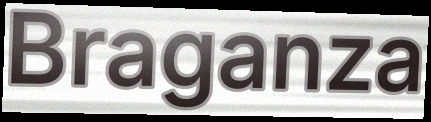
Braganza